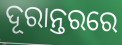
ଦୂରାନ୍ତରରେ